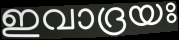
ഇവാദ്രയഃ